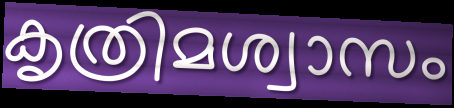
കൃത്രിമശ്വാസം